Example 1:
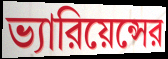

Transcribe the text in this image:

ভ্যারিয়েন্সের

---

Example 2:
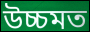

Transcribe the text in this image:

উচ্চমত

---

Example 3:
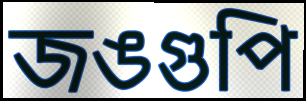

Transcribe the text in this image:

জঙগুপি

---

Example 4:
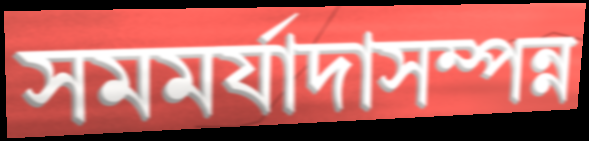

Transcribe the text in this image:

সমমর্যাদাসম্পন্ন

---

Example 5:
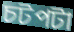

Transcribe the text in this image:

চটপটা